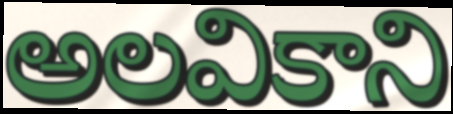
అలవికాని